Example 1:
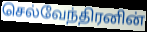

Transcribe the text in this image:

செல்வேந்திரனின்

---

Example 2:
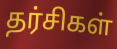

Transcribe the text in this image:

தர்சிகள்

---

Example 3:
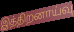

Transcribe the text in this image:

இத்திறனாய்வு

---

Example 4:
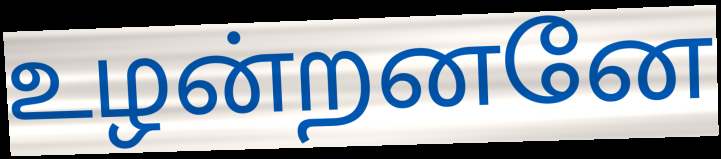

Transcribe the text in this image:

உழன்றனனே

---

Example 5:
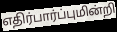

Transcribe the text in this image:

எதிர்பார்ப்புமின்றி